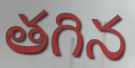
తగిన